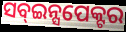
ସବ୍ଇନ୍ସପେକ୍ଟର